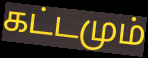
கட்டமும்